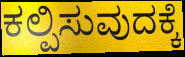
ಕಲ್ಪಿಸುವುದಕ್ಕೆ